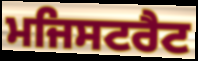
ਮਜਿਸਟਰੈਟ